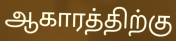
ஆகாரத்திற்கு